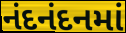
નંદનંદનમાં